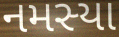
નમસ્યા